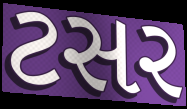
ટસર